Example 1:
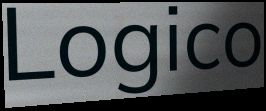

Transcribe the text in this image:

Logico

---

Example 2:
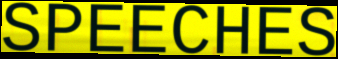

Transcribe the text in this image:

SPEECHES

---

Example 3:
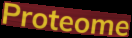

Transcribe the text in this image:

Proteome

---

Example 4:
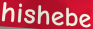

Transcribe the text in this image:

hishebe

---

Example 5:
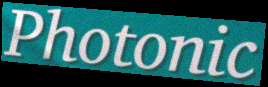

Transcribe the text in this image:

Photonic